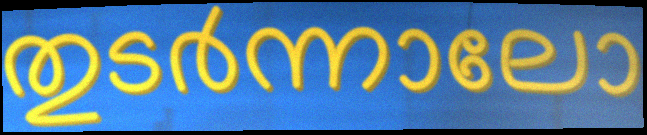
തുടർന്നാലോ